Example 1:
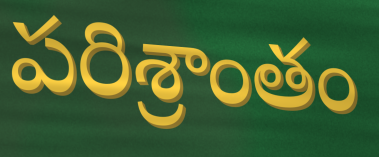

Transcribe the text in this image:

పరిశ్రాంతం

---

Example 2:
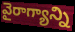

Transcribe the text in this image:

వైరాగ్యాన్ని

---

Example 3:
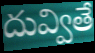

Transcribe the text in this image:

దువ్వితే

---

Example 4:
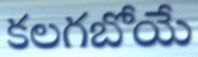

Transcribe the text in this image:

కలగబోయే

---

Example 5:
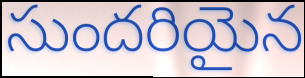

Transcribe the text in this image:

సుందరియైన